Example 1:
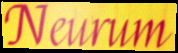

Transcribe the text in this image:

Neurum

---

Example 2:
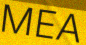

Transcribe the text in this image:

MEA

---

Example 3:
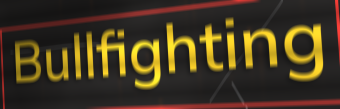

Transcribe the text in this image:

Bullfighting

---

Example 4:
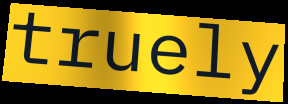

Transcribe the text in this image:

truely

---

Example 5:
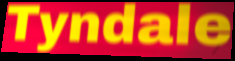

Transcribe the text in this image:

Tyndale